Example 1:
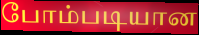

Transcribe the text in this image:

போம்படியான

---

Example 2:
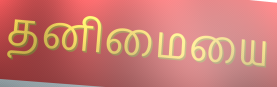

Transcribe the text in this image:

தனிமையை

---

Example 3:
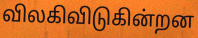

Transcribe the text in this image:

விலகிவிடுகின்றன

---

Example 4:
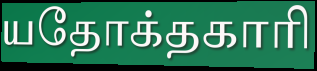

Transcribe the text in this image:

யதோக்தகாரி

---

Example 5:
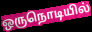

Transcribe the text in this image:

ஒருநொடியில்